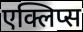
एक्लिप्स